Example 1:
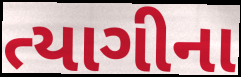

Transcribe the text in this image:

ત્યાગીના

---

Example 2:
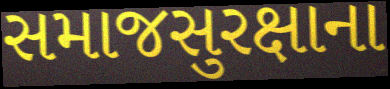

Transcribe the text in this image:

સમાજસુરક્ષાના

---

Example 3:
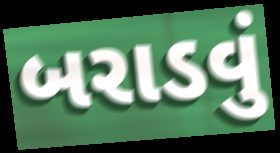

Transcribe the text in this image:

બરાડવું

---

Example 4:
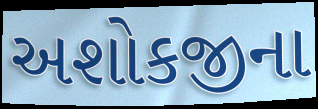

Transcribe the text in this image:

અશોકજીના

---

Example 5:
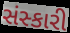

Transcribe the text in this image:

સંસ્કારી